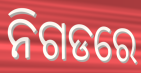
ନିଗଡରେ